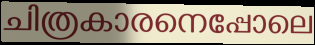
ചിത്രകാരനെപ്പോലെ